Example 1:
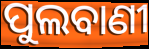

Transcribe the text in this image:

ପୁଲବାଣୀ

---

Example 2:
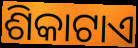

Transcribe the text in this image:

ଶିକାଟାଏ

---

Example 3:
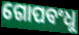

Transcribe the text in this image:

ଗୋପବଂଧୁ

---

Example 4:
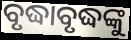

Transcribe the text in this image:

ବୃଦ୍ଧାବୃଦ୍ଧଙ୍କୁ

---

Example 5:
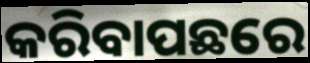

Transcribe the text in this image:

କରିବାପଛରେ